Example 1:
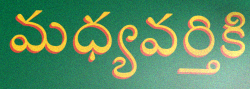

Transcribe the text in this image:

మధ్యవర్తికి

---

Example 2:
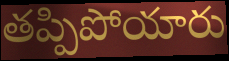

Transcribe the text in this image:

తప్పిపోయారు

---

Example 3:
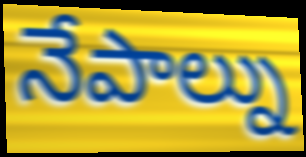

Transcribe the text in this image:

నేపాల్ను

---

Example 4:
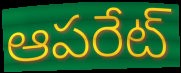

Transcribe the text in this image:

ఆపరేట్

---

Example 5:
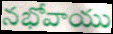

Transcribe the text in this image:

నభోవాయు